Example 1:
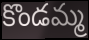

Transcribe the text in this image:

కొండమ్మ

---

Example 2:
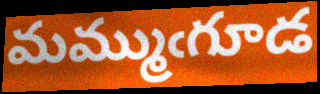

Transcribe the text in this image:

మమ్ముఁగూడ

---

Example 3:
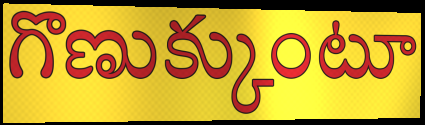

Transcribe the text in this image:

గొణుక్కుంటూ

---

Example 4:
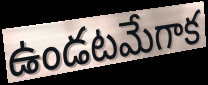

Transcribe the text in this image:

ఉండటమేగాక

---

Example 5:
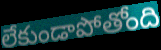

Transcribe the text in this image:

లేకుండాపోతోంది